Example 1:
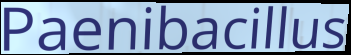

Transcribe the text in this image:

Paenibacillus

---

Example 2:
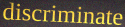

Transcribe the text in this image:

discriminate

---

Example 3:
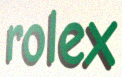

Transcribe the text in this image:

rolex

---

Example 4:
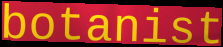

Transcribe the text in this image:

botanist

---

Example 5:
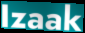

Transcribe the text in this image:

Izaak